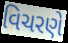
વિચરણે